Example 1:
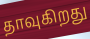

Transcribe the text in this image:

தாவுகிறது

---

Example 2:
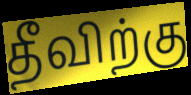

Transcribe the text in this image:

தீவிற்கு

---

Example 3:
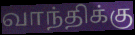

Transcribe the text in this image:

வாந்திக்கு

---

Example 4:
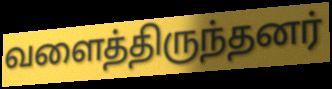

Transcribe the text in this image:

வளைத்திருந்தனர்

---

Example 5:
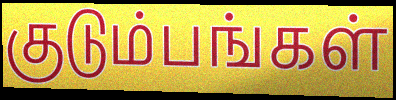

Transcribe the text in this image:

குடும்பங்கள்